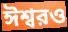
ঈশ্বরও